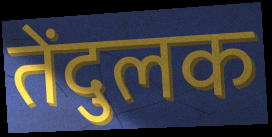
तेंदुलक